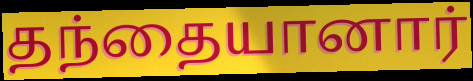
தந்தையானார்